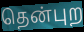
தென்புற